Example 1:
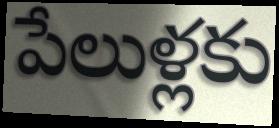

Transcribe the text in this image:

పేలుళ్లకు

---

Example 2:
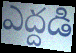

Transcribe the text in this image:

ఎద్దడి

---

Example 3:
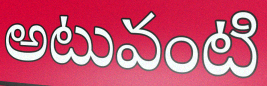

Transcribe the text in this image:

అటువంటి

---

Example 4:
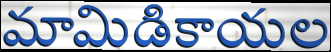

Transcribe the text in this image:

మామిడికాయల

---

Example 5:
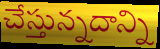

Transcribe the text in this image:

చేస్తున్నదాన్ని